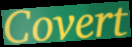
Covert